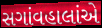
સગાંવહાલાંએ